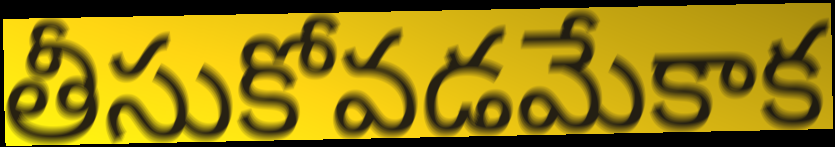
తీసుకోవడమేకాక